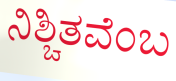
ನಿಶ್ಚಿತವೆಂಬ